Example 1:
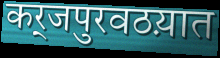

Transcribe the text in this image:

कर्जपुरवठय़ात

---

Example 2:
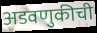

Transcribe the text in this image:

अडवणुकीची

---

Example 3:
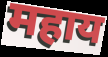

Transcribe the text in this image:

महाय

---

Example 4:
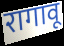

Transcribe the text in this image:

रागावू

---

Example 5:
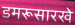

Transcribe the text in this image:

डमरूसारखे